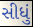
સીધું